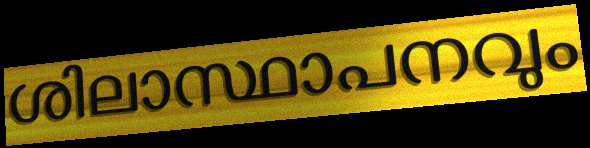
ശിലാസ്ഥാപനവും